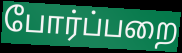
போர்ப்பறை